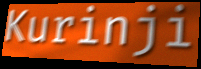
Kurinji